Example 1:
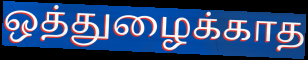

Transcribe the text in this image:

ஒத்துழைக்காத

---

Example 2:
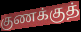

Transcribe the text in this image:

குணக்குத்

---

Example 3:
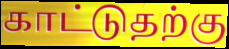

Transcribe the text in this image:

காட்டுதற்கு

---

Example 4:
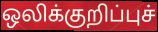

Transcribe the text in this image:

ஒலிக்குறிப்புச்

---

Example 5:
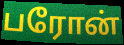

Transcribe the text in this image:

பரோன்